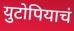
युटोपियाचं